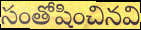
సంతోషించినవి